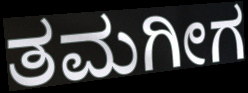
ತಮಗೀಗ